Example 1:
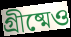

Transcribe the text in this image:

গ্রীষ্মেও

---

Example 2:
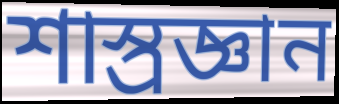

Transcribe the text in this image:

শাস্ত্রজ্ঞান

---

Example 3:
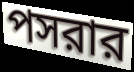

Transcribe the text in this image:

পসরার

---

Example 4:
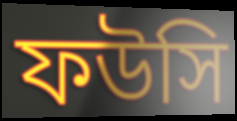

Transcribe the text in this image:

ফউসি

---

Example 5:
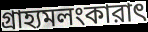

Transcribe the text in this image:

গ্রাহ্যমলংকারাৎ